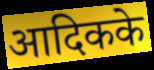
आदिकके